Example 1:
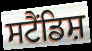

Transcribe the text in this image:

ਸਟੈਂਡਿਸ਼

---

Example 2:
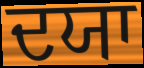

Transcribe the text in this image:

ਦਯਾ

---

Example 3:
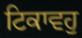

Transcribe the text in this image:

ਟਿਕਾਵਹੁ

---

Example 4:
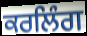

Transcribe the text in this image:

ਕਰਲਿੰਗ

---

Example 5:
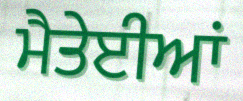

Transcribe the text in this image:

ਮੈਤੇਈਆਂ